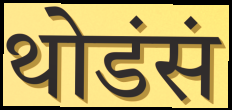
थोडंसं